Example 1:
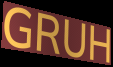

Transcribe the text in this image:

GRUH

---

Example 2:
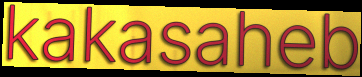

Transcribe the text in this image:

kakasaheb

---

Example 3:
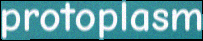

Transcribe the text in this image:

protoplasm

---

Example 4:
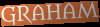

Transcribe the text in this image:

GRAHAM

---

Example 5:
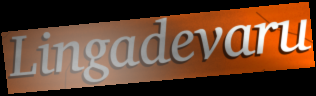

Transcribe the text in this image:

Lingadevaru